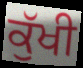
ਕੁੱਖੀ